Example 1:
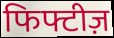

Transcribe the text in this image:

फिफ्टीज़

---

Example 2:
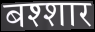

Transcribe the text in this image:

बश्शार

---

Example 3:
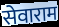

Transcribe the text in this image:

सेवाराम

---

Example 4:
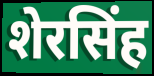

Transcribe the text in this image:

शेरसिंह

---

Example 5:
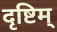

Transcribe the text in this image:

दृष्टिम्